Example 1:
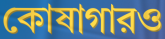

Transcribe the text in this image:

কোষাগারও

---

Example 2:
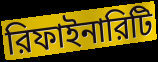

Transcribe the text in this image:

রিফাইনারিটি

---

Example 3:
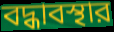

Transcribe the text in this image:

বদ্ধাবস্থার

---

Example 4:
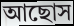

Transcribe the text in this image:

আছোস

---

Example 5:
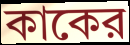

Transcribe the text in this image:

কাকের